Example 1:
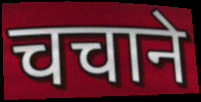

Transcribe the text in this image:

चचाने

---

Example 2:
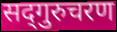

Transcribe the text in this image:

सद्‍गुरुचरण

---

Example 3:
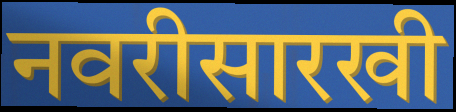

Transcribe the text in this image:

नवरीसारखी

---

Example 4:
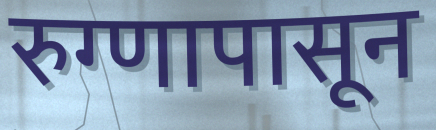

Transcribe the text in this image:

रुग्णापासून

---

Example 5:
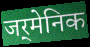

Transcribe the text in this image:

जर्मेनिक